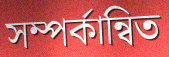
সম্পর্কান্বিত